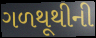
ગળથૂથીની